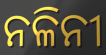
ନଳିନୀ